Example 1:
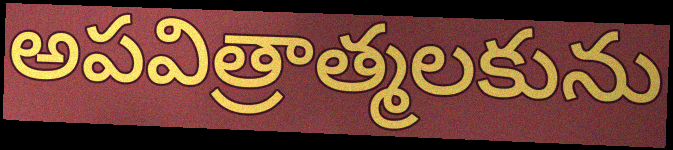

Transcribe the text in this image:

అపవిత్రాత్మలకును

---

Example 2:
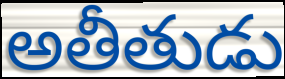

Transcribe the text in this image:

అతీతుడు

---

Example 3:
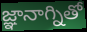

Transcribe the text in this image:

జ్ఞానాగ్నితో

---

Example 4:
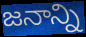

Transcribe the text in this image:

జనాన్ని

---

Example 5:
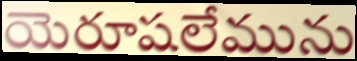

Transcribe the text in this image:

యెరూషలేమును